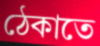
ঠেকাতে